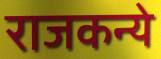
राजकन्ये